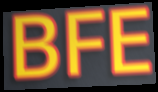
BFE